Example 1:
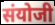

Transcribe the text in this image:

संयोजी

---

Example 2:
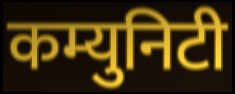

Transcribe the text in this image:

कम्युनिटी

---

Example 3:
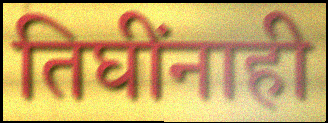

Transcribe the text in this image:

तिघींनाही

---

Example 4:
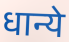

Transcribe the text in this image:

धान्ये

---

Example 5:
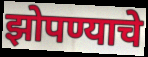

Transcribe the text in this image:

झोपण्याचे